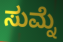
ಸುಮ್ನೆ